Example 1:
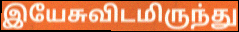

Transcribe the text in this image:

இயேசுவிடமிருந்து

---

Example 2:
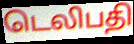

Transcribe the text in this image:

டெலிபதி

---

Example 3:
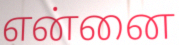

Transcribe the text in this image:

என்னை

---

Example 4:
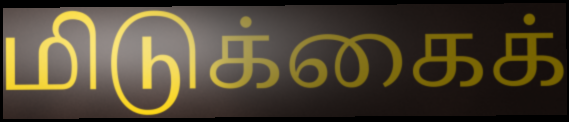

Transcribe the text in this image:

மிடுக்கைக்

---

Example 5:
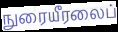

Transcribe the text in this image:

நுரையீரலைப்